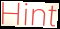
Hint